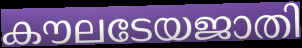
കൗലടേയജാതി